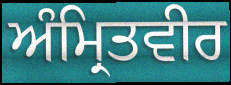
ਅੰਮ੍ਰਿਤਵੀਰ